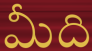
మీది